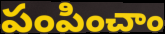
పంపించాం